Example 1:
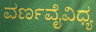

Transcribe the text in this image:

ವರ್ಣವೈವಿಧ್ಯ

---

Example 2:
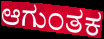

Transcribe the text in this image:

ಆಗುಂತಕ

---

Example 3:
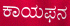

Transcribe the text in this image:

ಕಾಯಫನ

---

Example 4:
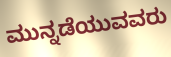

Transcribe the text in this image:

ಮುನ್ನಡೆಯುವವರು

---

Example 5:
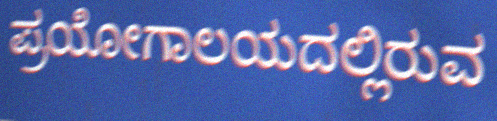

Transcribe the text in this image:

ಪ್ರಯೋಗಾಲಯದಲ್ಲಿರುವ